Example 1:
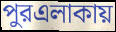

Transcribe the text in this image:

পুরএলাকায়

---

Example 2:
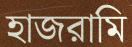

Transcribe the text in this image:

হাজরামি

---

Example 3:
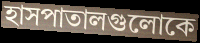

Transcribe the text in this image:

হাসপাতালগুলোকে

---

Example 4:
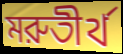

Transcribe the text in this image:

মরুতীর্থ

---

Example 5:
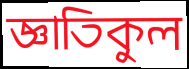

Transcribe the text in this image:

জ্ঞাতিকুল